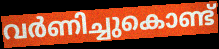
വർണിച്ചുകൊണ്ട്